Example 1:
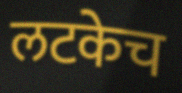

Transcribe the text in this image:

लटकेच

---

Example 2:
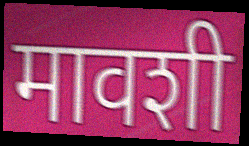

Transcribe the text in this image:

मावशी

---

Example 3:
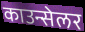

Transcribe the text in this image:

काउन्सेलर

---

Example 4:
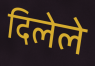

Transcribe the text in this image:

दिलेले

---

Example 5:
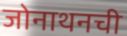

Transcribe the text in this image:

जोनाथनची